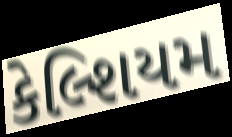
કેલ્શિયમ